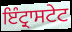
ਇੰਟ੍ਰਾਸਟੇਟ